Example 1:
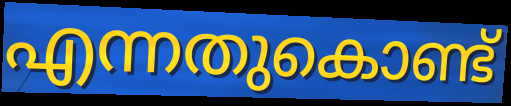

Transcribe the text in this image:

എന്നതുകൊണ്ട്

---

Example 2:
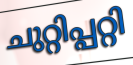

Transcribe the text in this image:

ചുറ്റിപ്പറ്റി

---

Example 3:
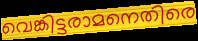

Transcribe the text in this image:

വെങ്കിട്ടരാമനെതിരെ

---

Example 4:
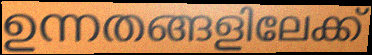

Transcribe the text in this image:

ഉന്നതങ്ങളിലേക്ക്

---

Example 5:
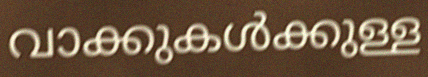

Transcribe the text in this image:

വാക്കുകൾക്കുള്ള